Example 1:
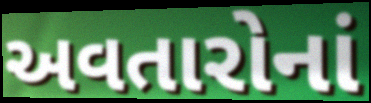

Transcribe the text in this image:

અવતારોનાં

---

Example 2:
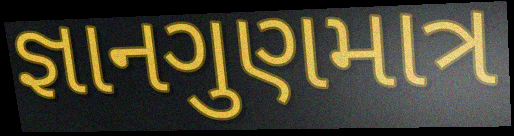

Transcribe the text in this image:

જ્ઞાનગુણમાત્ર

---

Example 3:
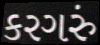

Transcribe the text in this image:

કરગરું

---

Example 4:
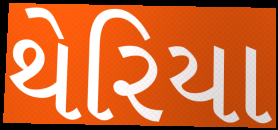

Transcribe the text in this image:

થેરિયા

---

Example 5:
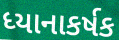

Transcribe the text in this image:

ધ્યાનાકર્ષક